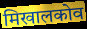
मिखालकोव